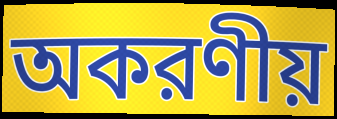
অকরণীয়